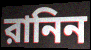
রানিন